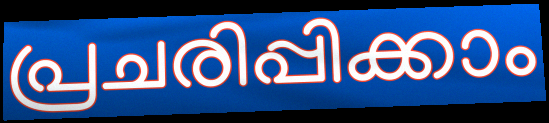
പ്രചരിപ്പിക്കാം